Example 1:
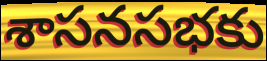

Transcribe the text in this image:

శాసనసభకు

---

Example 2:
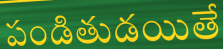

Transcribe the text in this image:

పండితుడయితే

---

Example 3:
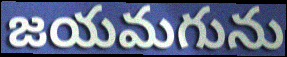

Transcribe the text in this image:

జయమగును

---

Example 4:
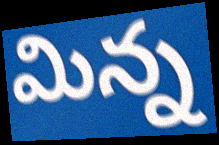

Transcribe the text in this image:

మిన్న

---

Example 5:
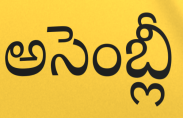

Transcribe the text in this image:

అసెంబ్లీ